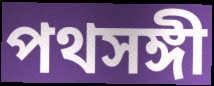
পথসঙ্গী